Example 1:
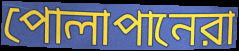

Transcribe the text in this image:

পোলাপানেরা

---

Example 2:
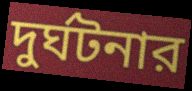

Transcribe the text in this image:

দুর্ঘটনার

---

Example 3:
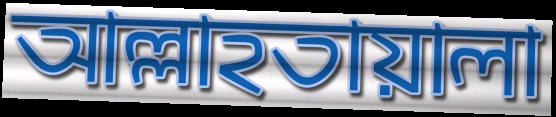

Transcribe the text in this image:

আল্লাহতায়ালা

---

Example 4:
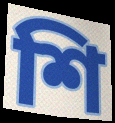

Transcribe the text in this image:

শি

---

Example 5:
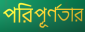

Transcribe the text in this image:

পরিপূর্ণতার